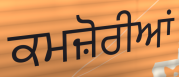
ਕਮਜ਼ੋਰੀਆਂ